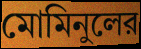
মোমিনুলের